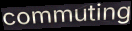
commuting